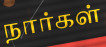
நார்கள்